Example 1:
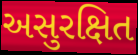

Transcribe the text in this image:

અસુરક્ષિત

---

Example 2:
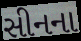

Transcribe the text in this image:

સીનના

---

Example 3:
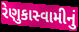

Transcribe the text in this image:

રેણુકાસ્વામીનું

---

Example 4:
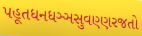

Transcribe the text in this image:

પહૂતધનધઞ્ઞસુવણ્ણરજતો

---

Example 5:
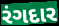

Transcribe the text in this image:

રંગદાર